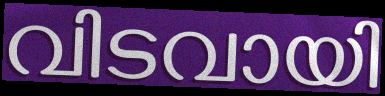
വിടവായി